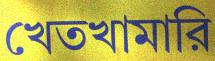
খেতখামারি